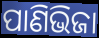
ପାଣିଭିଜା